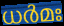
ധർമഃ